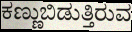
ಕಣ್ಣುಬಿಡುತ್ತಿರುವ